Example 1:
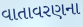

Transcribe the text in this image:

વાતાવરણના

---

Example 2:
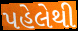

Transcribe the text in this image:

પહેલેથી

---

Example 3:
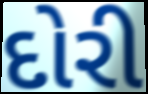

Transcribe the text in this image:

દોરી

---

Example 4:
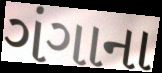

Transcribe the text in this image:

ગંગાના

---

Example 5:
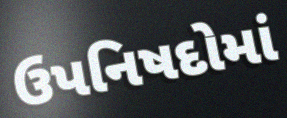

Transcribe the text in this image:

ઉપનિષદોમાં